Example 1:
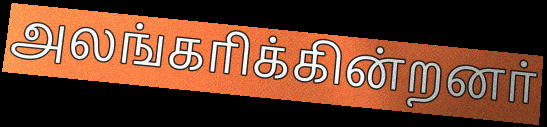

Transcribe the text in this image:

அலங்கரிக்கின்றனர்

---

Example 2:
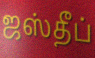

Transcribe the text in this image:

ஜஸ்தீப்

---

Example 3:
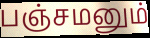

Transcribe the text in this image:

பஞ்சமனும்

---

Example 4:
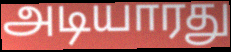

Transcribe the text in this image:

அடியாரது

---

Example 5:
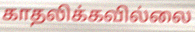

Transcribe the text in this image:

காதலிக்கவில்லை